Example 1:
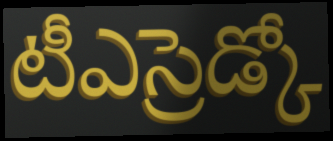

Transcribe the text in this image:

టీఎస్రెడ్కో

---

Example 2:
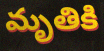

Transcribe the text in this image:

మృతికి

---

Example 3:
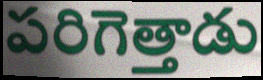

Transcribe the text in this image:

పరిగెత్తాడు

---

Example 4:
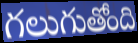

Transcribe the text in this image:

గలుగుతోంది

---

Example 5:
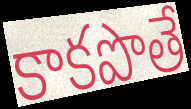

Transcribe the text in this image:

కాకపొతే